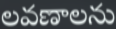
లవణాలను